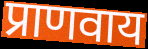
प्राणवाय